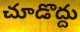
చూడొద్దు